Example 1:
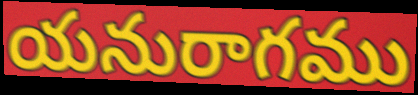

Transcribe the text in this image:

యనురాగము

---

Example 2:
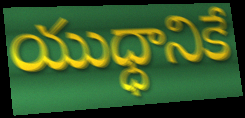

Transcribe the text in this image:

యుధ్ధానికే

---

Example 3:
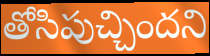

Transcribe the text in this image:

తోసిపుచ్చిందని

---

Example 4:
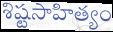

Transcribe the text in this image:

శిష్టసాహిత్యం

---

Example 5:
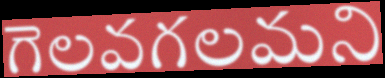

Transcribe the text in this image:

గెలవగలమని